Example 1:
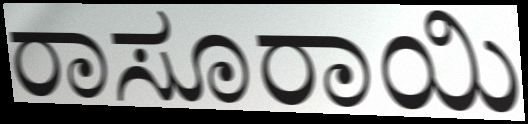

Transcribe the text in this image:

ರಾಸೂರಾಯಿ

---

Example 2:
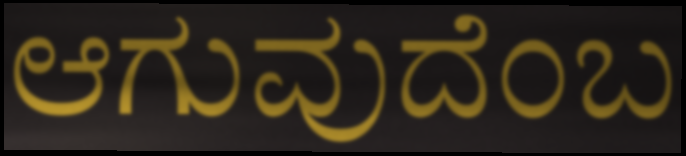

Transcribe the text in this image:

ಆಗುವುದೆಂಬ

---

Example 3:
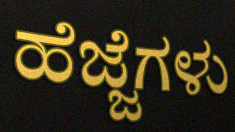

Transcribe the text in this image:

ಹೆಜ್ಜೆಗಳು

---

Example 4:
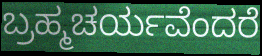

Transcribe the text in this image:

ಬ್ರಹ್ಮಚರ್ಯವೆಂದರೆ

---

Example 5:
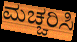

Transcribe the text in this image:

ಮಚ್ಚರಿಸಿ